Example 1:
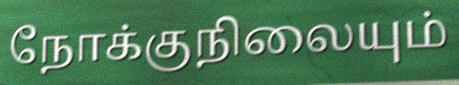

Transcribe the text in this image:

நோக்குநிலையும்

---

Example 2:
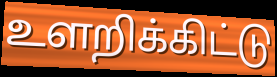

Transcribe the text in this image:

உளறிக்கிட்டு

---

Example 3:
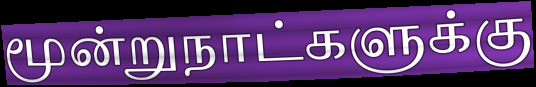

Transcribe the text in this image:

மூன்றுநாட்களுக்கு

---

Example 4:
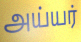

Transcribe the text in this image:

அய்யர்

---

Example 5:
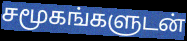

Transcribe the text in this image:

சமூகங்களுடன்